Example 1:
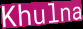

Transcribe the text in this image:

Khulna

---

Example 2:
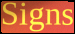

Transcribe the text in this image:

Signs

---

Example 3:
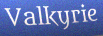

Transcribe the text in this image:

Valkyrie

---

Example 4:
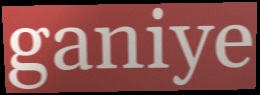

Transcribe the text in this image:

ganiye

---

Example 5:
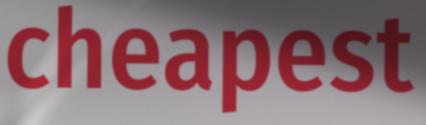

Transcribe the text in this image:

cheapest